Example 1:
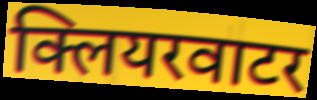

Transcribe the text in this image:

क्लियरवाटर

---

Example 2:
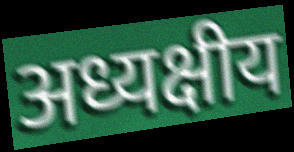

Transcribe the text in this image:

अध्यक्षीय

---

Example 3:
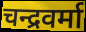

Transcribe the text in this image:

चन्द्रवर्मा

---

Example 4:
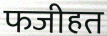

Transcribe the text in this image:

फजीहत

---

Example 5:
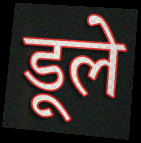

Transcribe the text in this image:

डूले